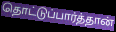
தொட்டுப்பார்த்தான்